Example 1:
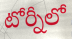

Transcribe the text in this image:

టోర్నీలో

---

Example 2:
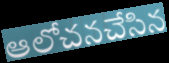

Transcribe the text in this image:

ఆలోచనచేసిన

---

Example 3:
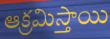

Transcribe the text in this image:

ఆక్రమిస్తాయి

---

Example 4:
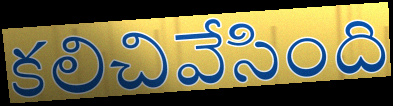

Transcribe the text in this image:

కలిచివేసింది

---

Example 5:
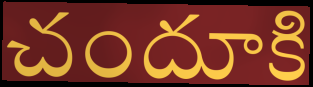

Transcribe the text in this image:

చందూకి